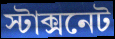
স্টাক্সনেট